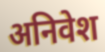
अनिवेश